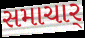
સમાચાર્